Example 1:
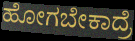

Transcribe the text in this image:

ಹೋಗಬೇಕಾದ್ರೆ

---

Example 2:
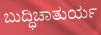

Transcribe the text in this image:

ಬುದ್ಧಿಚಾತುರ್ಯ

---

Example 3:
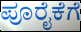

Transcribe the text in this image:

ಪೂರೈಕೆಗೆ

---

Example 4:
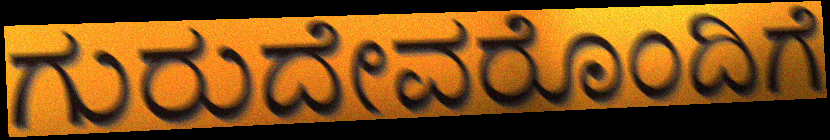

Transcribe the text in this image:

ಗುರುದೇವರೊಂದಿಗೆ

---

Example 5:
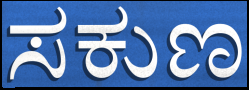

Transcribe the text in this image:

ಸಕುಣ